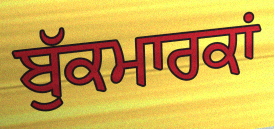
ਬੁੱਕਮਾਰਕਾਂ